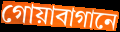
গোয়াবাগানে